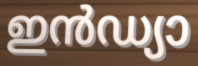
ഇൻഡ്യാ